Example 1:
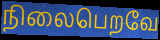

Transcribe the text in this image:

நிலைபெறவே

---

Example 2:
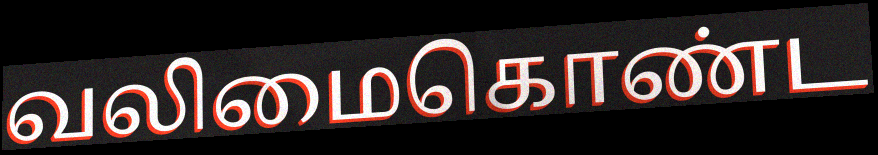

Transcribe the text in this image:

வலிமைகொண்ட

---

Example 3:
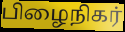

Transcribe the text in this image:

பிழைநிகர்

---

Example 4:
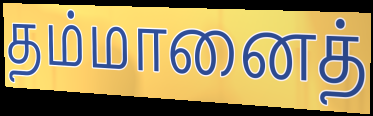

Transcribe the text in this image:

தம்மானைத்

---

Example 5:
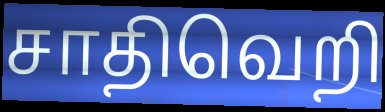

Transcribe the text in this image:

சாதிவெறி